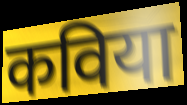
कविया